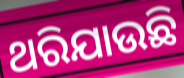
ଥରିଯାଉଛି